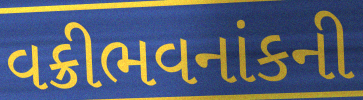
વક્રીભવનાંકની